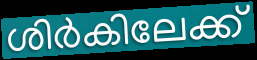
ശിർകിലേക്ക്